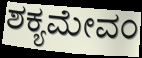
ಶಕ್ಯಮೇವಂ